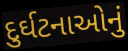
દુર્ઘટનાઓનું